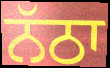
ਨੱਠਾ